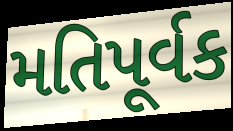
મતિપૂર્વક